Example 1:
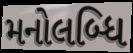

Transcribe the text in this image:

મનોલબ્ધિ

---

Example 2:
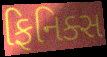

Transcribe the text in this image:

ફિનિક્સ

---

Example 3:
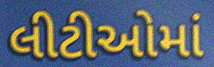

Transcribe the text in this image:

લીટીઓમાં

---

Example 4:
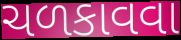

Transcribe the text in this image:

ચળકાવવા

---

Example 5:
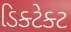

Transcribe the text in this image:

ડિક્ટેક્ટ